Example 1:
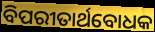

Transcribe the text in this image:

ବିପରୀତାର୍ଥବୋଧକ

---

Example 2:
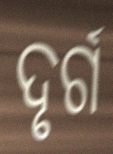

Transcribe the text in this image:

ଦୃର୍ଗ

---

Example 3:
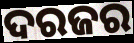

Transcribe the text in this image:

ଦରଜର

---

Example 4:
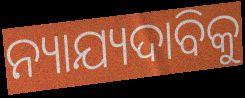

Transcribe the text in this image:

ନ୍ୟାଯ୍ୟଦାବିକୁ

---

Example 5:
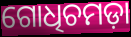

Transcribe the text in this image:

ଗୋଧିଚମଡ଼ା